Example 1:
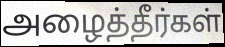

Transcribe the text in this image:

அழைத்தீர்கள்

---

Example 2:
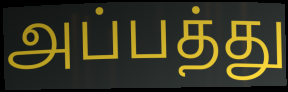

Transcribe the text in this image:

அப்பத்து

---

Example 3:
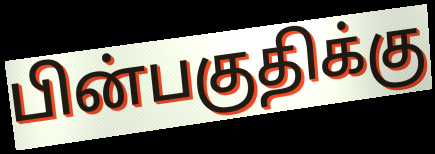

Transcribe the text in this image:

பின்பகுதிக்கு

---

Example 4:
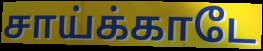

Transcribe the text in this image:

சாய்க்காடே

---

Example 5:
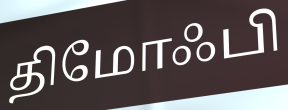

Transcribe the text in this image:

திமோஃபி